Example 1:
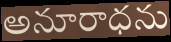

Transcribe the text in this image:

అనూరాధను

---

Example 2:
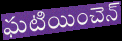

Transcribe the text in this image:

ఘటియించెన్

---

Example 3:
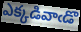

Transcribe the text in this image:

ఎక్కడివాఁడొ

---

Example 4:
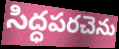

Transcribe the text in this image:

సిద్ధపరచెను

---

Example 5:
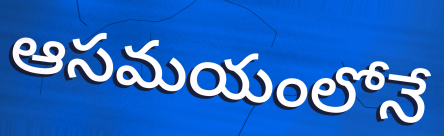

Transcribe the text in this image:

ఆసమయంలోనే